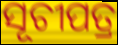
ସୂଚୀପତ୍ର